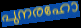
പുനരഹോ